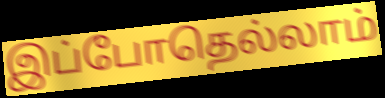
இப்போதெல்லாம்